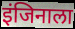
इंजिनाला